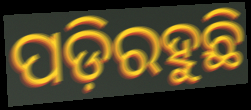
ପଡ଼ିରହୁଛି